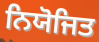
ਨਿਯੋਜਿਤ